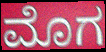
ಮೊಗ